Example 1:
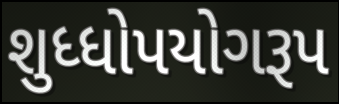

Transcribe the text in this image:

શુધ્ધોપયોગરૂપ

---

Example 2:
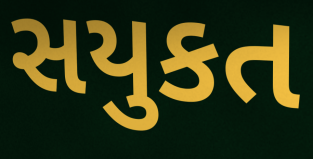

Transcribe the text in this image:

સયુકત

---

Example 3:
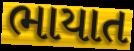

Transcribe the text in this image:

ભાયાત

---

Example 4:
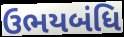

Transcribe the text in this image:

ઉભયબંધિ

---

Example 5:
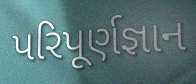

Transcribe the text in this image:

પરિપૂર્ણજ્ઞાન